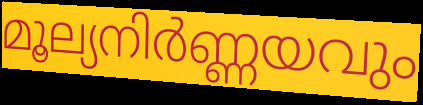
മൂല്യനിർണ്ണയവും